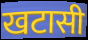
खटासी